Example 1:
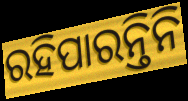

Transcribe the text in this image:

ରହିପାରନ୍ତିନି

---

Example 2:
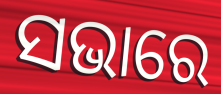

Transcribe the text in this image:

ସଭାରେ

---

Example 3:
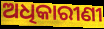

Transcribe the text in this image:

ଅଧିକାରୀଣୀ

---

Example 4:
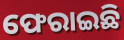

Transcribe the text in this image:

ଫେରାଇଛି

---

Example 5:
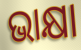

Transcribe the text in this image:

ଭାକ୍ଷା